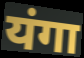
यंगा